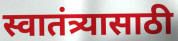
स्वातंत्र्यासाठी